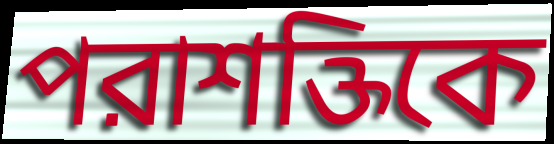
পরাশক্তিকে